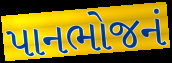
પાનભોજનં